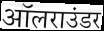
ऑलराउंडर